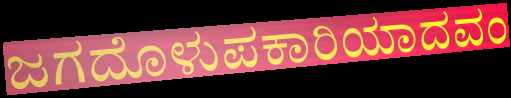
ಜಗದೊಳುಪಕಾರಿಯಾದವಂ